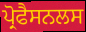
ਪ੍ਰੋਫੈਸਨਲਸ